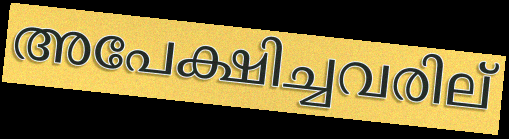
അപേക്ഷിച്ചവരില്